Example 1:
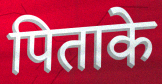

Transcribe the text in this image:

पिताके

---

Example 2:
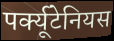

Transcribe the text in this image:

पर्क्यूटेनियस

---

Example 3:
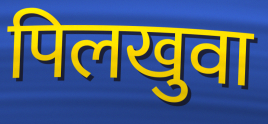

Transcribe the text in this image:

पिलखुवा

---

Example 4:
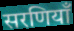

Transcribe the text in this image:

सरणियाँ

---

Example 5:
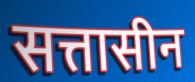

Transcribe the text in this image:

सत्तासीन